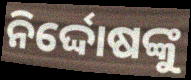
ନିର୍ଦ୍ଦୋଷଙ୍କୁ